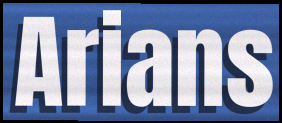
Arians